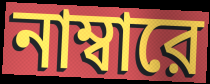
নাম্বারে